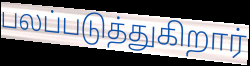
பலப்படுத்துகிறார்